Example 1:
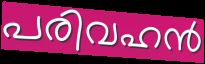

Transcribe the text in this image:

പരിവഹൻ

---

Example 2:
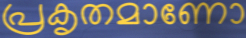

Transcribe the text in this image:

പ്രകൃതമാണോ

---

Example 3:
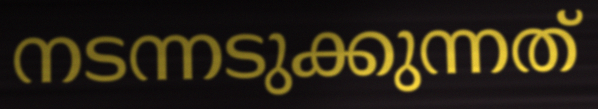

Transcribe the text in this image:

നടന്നടുക്കുന്നത്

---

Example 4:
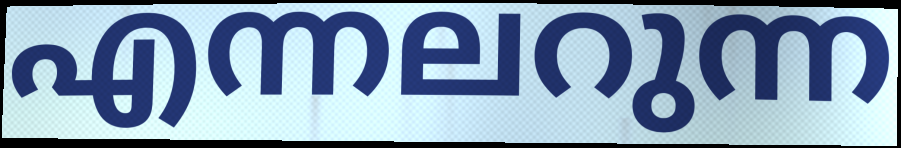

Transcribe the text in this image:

എന്നലറുന്ന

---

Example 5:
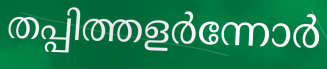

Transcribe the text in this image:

തപ്പിത്തളർന്നോർ